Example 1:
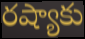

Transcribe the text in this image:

రష్యాకు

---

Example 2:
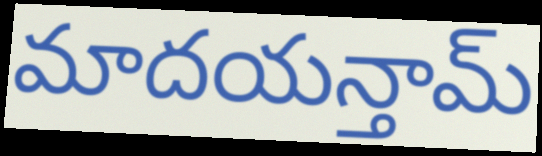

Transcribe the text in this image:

మాదయన్తామ్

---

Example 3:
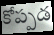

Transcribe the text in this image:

కోప్పడ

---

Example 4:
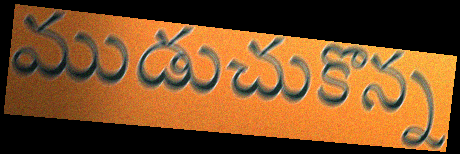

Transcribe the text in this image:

ముడుచుకొన్న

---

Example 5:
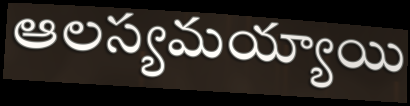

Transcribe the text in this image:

ఆలస్యమయ్యాయి